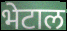
भेटाल